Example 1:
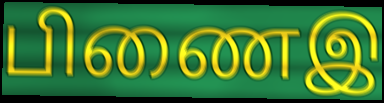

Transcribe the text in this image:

பிணைஇ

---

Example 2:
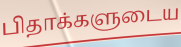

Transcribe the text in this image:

பிதாக்களுடைய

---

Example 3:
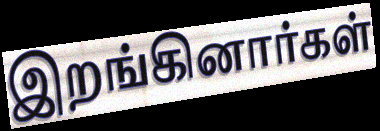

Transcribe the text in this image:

இறங்கினார்கள்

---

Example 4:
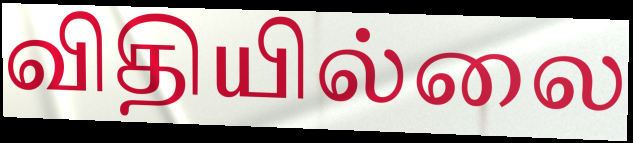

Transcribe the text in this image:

விதியில்லை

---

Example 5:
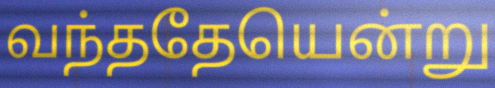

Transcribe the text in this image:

வந்ததேயென்று